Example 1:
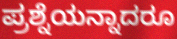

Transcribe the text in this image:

ಪ್ರಶ್ನೆಯನ್ನಾದರೂ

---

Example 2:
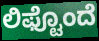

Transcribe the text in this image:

ಲಿಫ್ಟೊಂದೆ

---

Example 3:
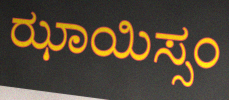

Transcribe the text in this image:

ಝಾಯಿಸ್ಸಂ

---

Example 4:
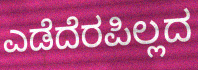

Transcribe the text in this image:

ಎಡೆದೆರಪಿಲ್ಲದ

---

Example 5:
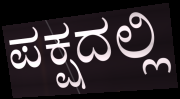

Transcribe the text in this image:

ಪಕ್ಷದಲ್ಲಿ